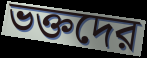
ভক্তদের